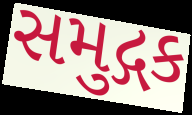
સમુદ્ગક